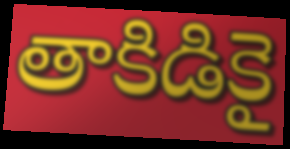
తాకిడికై